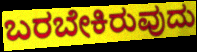
ಬರಬೇಕಿರುವುದು